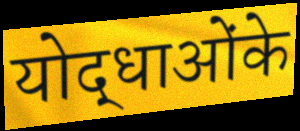
योद्धाओंके